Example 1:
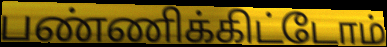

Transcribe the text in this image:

பண்ணிக்கிட்டோம்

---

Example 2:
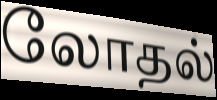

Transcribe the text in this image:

லோதல்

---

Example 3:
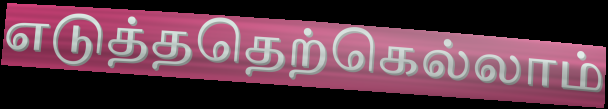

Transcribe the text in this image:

எடுத்ததெற்கெல்லாம்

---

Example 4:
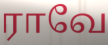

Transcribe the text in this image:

ராவே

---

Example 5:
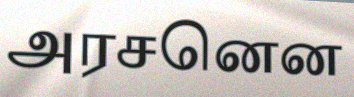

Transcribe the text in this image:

அரசனென